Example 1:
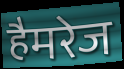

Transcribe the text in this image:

हैमरेज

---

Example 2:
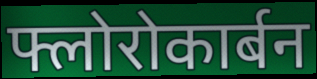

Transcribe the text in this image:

फ्लोरोकार्बन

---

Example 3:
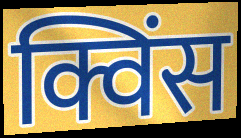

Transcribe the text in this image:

क्विंस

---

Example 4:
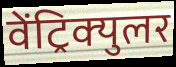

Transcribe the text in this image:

वेंट्रिक्युलर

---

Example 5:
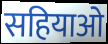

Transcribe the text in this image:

सहियाओ